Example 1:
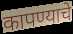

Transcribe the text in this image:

कापण्याचे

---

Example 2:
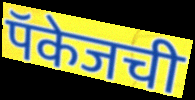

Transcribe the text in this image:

पॅकेजची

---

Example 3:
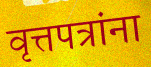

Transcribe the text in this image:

वृत्तपत्रांना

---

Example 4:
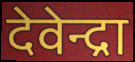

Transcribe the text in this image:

देवेन्द्रा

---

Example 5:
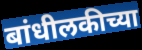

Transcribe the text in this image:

बांधीलकीच्या